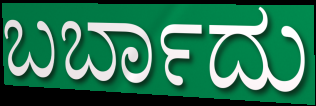
ಬರ್ಬಾದು